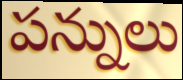
పన్నులు